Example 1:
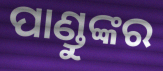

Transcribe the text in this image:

ପାଣ୍ଡୁଙ୍କର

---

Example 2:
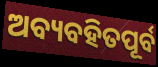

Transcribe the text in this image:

ଅବ୍ୟବହିତପୂର୍ବ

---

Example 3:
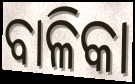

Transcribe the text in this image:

ବାଳିକା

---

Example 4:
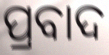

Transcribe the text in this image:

ପ୍ରବାଦ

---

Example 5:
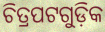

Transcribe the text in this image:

ଚିତ୍ରପଟଗୁଡ଼ିକ